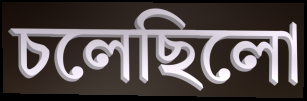
চলেছিলো